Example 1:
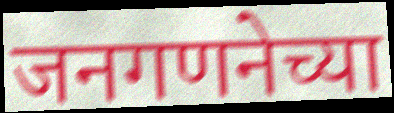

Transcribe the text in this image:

जनगणनेच्या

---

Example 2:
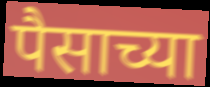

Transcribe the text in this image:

पैसाच्या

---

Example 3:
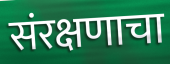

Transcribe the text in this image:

संरक्षणाचा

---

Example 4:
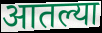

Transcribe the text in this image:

आतल्या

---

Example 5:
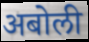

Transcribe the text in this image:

अबोली